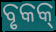
ବୃକକ୍